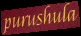
purushula